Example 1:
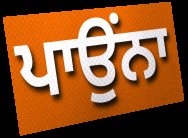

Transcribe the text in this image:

ਪਾਉਂਨਾ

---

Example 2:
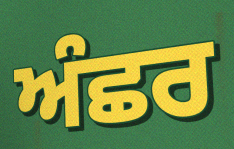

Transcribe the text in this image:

ਅੰਛਰ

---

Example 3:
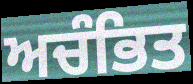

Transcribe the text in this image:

ਅਚੰਭਿਤ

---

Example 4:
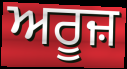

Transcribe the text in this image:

ਅਰੂਜ਼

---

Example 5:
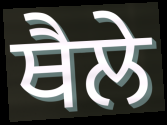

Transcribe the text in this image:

ਥੈਲੇ